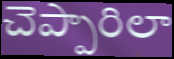
చెప్పారిలా